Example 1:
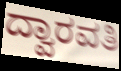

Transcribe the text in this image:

ದ್ವಾರವತಿ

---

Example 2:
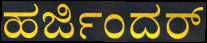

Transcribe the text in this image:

ಹರ್ಜಿಂದರ್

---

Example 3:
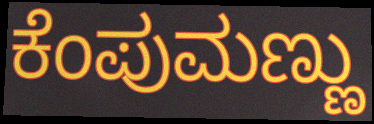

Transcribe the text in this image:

ಕೆಂಪುಮಣ್ಣು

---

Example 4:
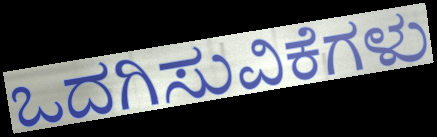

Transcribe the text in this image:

ಒದಗಿಸುವಿಕೆಗಳು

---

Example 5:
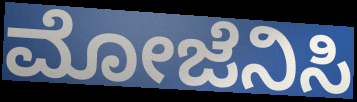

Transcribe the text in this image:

ಮೋಜೆನಿಸಿ